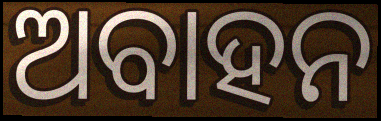
ଅବାହନ